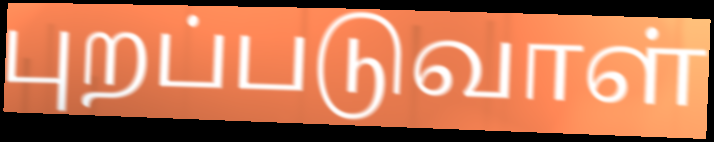
புறப்படுவாள்